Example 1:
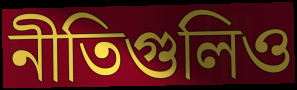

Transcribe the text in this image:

নীতিগুলিও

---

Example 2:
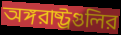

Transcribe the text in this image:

অঙ্গরাষ্ট্রগুলির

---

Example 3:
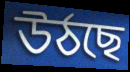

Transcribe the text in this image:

উঠছে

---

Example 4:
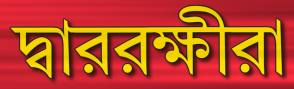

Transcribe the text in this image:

দ্বাররক্ষীরা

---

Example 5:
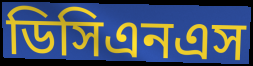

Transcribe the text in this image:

ডিসিএনএস